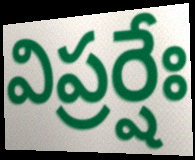
విప్రర్షేః